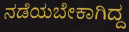
ನಡೆಯಬೇಕಾಗಿದ್ದ